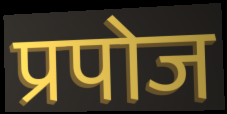
प्रपोज